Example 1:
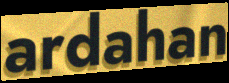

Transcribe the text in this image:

ardahan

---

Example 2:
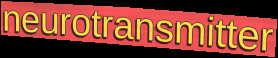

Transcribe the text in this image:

neurotransmitter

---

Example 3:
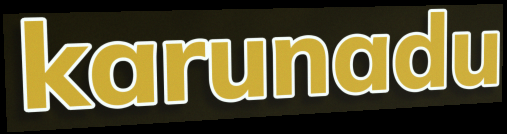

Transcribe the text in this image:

karunadu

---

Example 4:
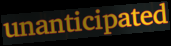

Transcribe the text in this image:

unanticipated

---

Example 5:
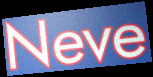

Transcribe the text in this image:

Neve